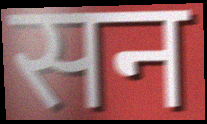
सन